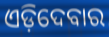
ଏଡ଼ିଦେବାର